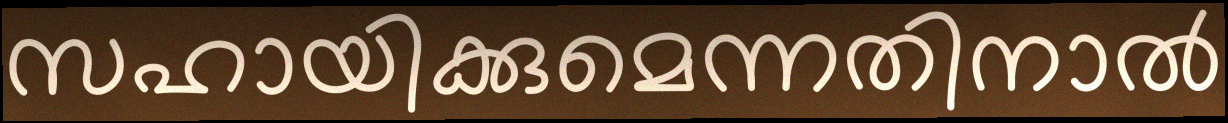
സഹായിക്കുമെന്നതിനാൽ